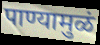
पाण्यामुळं